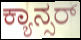
ಕ್ಯಾನ್ಸರ್